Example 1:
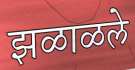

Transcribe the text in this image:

झळाळले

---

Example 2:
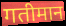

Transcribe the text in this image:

गतीमान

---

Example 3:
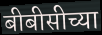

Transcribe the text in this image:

बीबीसीच्या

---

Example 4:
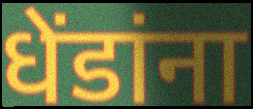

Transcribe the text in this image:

धेंडांना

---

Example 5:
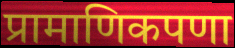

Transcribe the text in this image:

प्रामाणिकपणा